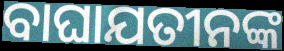
ବାଘାଯତୀନଙ୍କ